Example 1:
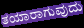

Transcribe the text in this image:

ತಯಾರಾಗುವುದು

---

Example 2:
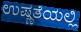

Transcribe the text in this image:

ಉಷ್ಣತೆಯಲ್ಲಿ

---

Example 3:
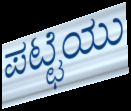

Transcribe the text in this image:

ಪಟ್ಟೆಯು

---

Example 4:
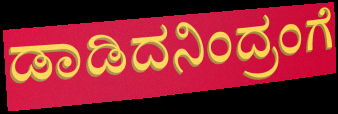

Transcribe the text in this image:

ಡಾಡಿದನಿಂದ್ರಂಗೆ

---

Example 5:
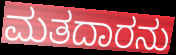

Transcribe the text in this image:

ಮತದಾರನು